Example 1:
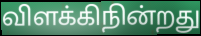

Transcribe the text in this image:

விளக்கிநின்றது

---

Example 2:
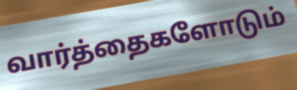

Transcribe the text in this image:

வார்த்தைகளோடும்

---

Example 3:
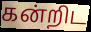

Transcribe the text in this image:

கன்றிட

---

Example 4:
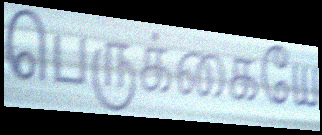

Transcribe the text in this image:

பெருக்கையே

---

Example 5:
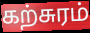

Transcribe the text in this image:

கற்சுரம்